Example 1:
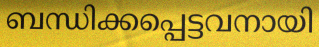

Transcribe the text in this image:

ബന്ധിക്കപ്പെട്ടവനായി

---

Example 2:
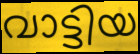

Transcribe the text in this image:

വാട്ടിയ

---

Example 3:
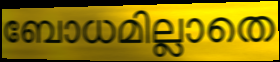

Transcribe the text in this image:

ബോധമില്ലാതെ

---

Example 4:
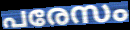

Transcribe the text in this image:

പരേസം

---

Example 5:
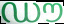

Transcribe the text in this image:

ഡൗ